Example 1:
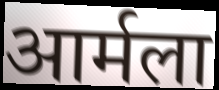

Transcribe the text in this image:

आर्मला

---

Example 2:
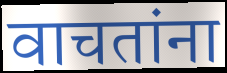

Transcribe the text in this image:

वाचतांना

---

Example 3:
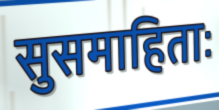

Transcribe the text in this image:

सुसमाहिताः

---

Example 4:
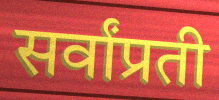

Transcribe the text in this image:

सर्वांप्रती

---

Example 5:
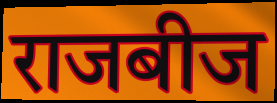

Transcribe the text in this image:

राजबीज